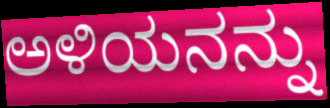
ಅಳಿಯನನ್ನು